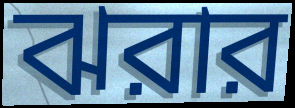
ঝরার